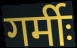
गर्मीः